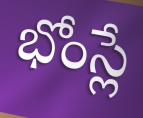
భోంస్లే